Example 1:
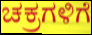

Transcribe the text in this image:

ಚಕ್ರಗಳಿಗೆ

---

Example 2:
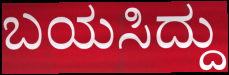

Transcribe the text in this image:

ಬಯಸಿದ್ದು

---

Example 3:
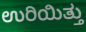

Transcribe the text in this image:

ಉರಿಯಿತ್ತು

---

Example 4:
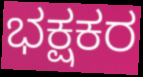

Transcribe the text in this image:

ಭಕ್ಷಕರ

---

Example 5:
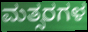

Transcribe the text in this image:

ಮತ್ಸರಗಳ